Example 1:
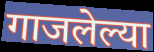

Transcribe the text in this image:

गाजलेल्या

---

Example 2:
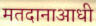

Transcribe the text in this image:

मतदानाआधी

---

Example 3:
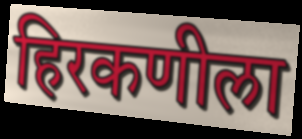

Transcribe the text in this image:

हिरकणीला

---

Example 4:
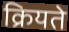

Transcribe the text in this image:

क्रियते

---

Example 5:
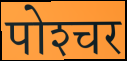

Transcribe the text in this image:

पोश्चर